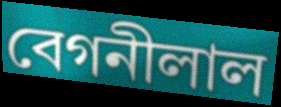
বেগনীলাল